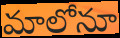
మాలోనూ